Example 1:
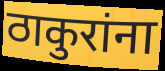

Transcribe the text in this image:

ठाकुरांना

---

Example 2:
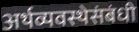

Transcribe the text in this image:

अर्थव्यवस्थेसंबंधी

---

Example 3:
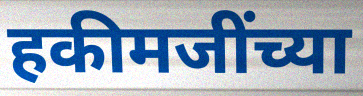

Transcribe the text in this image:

हकीमजींच्या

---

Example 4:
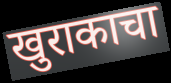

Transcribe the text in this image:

खुराकाचा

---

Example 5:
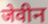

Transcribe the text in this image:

जेवीन